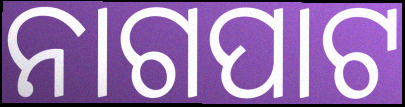
ନାଗପାଟ